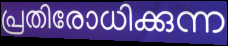
പ്രതിരോധിക്കുന്ന